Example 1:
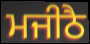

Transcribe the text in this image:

ਮਜੀਠੈ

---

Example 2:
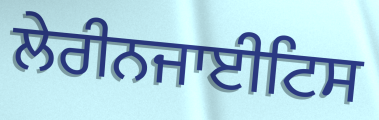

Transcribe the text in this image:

ਲੇਰੀਨਜਾਈਟਿਸ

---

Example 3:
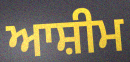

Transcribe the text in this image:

ਆਸ਼ੀਮ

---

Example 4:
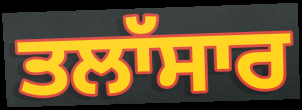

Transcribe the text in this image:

ਤਲਾੱਸਾਰ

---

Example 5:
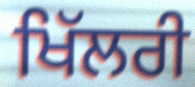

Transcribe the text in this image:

ਖਿੱਲਰੀ